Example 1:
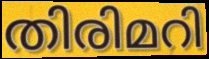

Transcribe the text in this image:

തിരിമറി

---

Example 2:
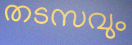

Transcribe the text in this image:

തടസവും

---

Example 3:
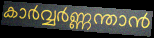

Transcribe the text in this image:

കാർവ്വർണ്ണന്താൻ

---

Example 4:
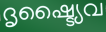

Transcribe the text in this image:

ദൃഷ്ട്യൈവ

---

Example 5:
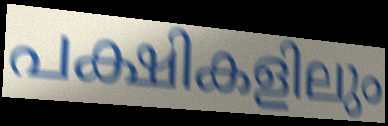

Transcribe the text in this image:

പക്ഷികളിലും